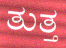
ತುತ್ತ